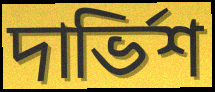
দার্ভিশ